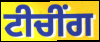
ਟੀਚੀਂਗ